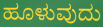
ಹೂಳುವುದು